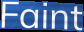
Faint